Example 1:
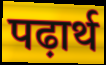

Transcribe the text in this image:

पढ़ार्थ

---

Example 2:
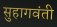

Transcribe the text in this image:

सुहागवंती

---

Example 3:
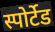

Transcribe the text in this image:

स्पोर्टेड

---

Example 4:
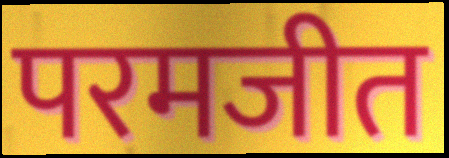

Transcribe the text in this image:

परमजीत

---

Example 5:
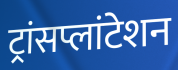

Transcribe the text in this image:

ट्रांसप्लांटेशन